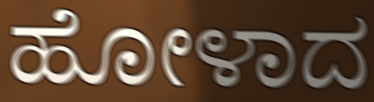
ಹೋಳಾದ